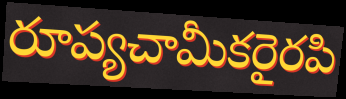
రూప్యచామీకరైరపి